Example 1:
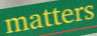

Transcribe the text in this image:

matters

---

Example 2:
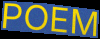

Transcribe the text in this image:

POEM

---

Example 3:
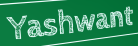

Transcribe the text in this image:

Yashwant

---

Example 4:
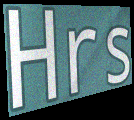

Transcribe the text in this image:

Hrs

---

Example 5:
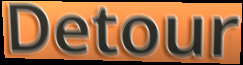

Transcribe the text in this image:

Detour